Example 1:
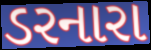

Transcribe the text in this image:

ડરનારા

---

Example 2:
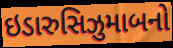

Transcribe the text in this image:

ઇડારુસિઝુમાબનો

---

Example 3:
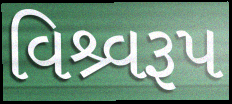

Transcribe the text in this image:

વિશ્ર્વરૂપ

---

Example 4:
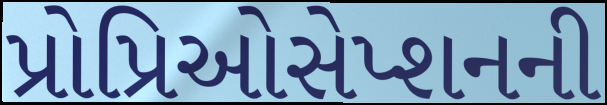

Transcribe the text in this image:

પ્રોપ્રિઓસેપ્શનની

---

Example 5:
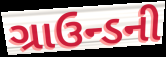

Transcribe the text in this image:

ગ્રાઉન્ડની